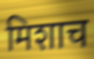
मिशाच